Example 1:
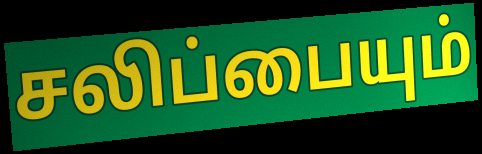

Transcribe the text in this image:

சலிப்பையும்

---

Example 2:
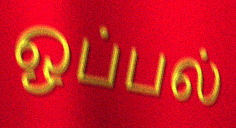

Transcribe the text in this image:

ஒப்பல்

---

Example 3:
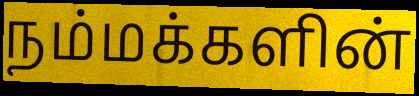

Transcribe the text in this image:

நம்மக்களின்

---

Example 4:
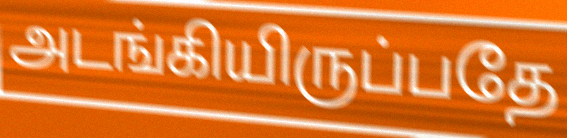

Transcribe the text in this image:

அடங்கியிருப்பதே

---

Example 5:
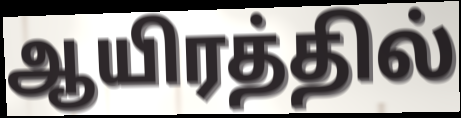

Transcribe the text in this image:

ஆயிரத்தில்